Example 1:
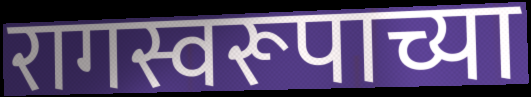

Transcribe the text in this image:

रागस्वरूपाच्या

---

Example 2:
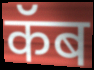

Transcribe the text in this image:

कॅब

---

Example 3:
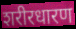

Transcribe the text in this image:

शरीरधारण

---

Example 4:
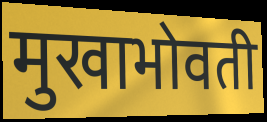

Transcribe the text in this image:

मुखाभोवती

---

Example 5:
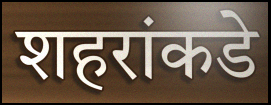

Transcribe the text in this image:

शहरांकडे